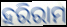
ହରିରାମ